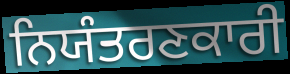
ਨਿਯੰਤਰਣਕਾਰੀ